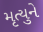
મૃત્યુને